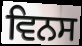
ਵਿਨਸ